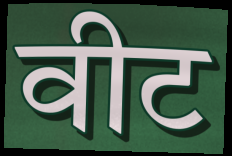
वीट